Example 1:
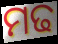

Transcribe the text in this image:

ମଢ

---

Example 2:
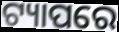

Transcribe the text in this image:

ଟ୍ୟାପରେ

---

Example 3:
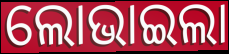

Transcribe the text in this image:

ଲୋଭାଇଲା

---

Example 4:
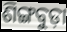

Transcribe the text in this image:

ଶିଙ୍ଗବୁଡ଼ା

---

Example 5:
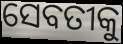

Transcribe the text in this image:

ସେବତୀକୁ